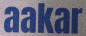
aakar